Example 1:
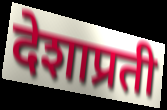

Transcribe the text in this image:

देशाप्रती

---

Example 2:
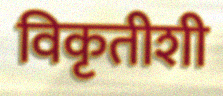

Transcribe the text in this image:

विकृतीशी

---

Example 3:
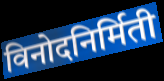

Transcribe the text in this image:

विनोदनिर्मिती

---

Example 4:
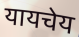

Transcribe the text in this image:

यायचेय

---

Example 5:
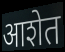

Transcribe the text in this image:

आशेत